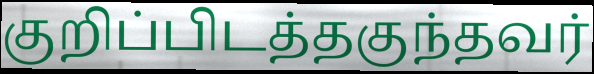
குறிப்பிடத்தகுந்தவர்